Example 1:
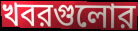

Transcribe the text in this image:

খবরগুলোর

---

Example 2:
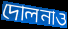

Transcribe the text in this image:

দোলনাও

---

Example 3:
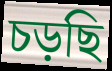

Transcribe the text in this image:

চড়ছি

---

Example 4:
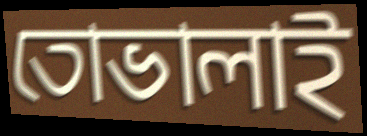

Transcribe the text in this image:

তোভালাই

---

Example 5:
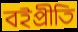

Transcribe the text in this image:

বইপ্রীতি